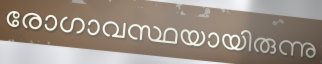
രോഗാവസ്ഥയായിരുന്നു